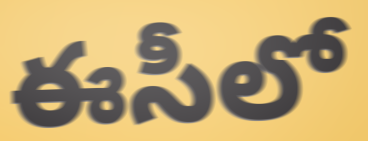
ఈసీలో